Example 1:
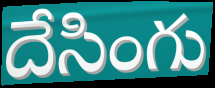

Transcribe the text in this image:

దేసింగు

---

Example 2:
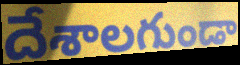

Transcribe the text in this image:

దేశాలగుండా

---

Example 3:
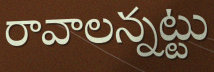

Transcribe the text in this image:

రావాలన్నట్టు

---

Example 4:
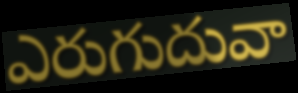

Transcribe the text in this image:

ఎరుగుదువా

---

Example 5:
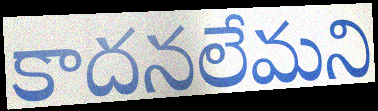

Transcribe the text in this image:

కాదనలేమని